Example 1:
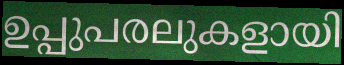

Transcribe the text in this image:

ഉപ്പുപരലുകളായി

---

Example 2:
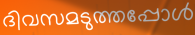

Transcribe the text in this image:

ദിവസമടുത്തപ്പോൾ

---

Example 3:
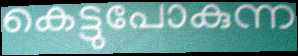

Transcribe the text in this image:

കെട്ടുപോകുന്ന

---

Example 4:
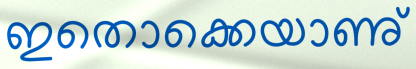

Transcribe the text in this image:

ഇതൊക്കെയാണു്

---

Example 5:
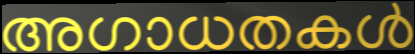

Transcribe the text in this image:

അഗാധതകൾ